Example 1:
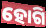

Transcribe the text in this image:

ହୋଗି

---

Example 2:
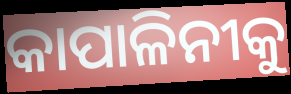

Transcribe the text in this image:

କାପାଳିନୀକୁ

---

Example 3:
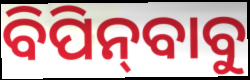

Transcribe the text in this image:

ବିପିନ୍‍ବାବୁ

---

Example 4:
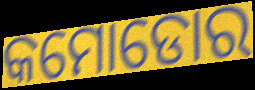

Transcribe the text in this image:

କମୋଡୋର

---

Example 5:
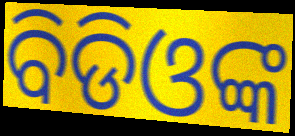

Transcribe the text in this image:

ବିଡିଓଙ୍କ